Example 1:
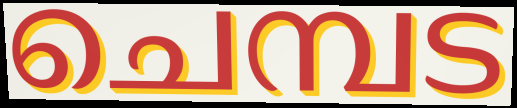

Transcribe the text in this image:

ചെമ്പട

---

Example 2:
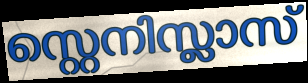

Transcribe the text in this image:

സ്റ്റെനിസ്ലാസ്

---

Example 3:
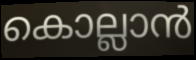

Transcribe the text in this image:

കൊല്ലാൻ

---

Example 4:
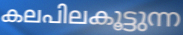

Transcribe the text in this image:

കലപിലകൂട്ടുന്ന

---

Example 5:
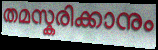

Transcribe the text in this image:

തമസ്കരിക്കാനും